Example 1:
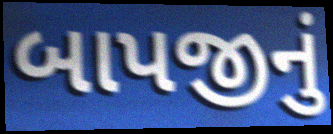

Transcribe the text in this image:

બાપજીનું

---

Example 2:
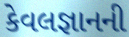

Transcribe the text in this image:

કેવલજ્ઞાનની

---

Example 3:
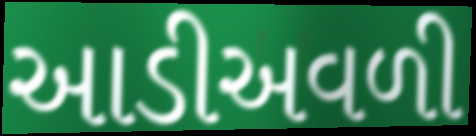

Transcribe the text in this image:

આડીઅવળી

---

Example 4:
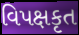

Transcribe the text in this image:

વિપક્ષકૃત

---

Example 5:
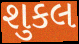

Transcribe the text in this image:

શુકલ